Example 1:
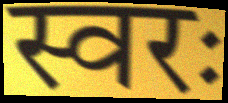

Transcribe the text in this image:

स्वरः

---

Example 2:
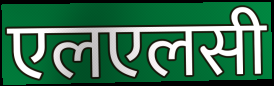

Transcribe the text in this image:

एलएलसी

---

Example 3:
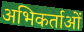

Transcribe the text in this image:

अभिकर्ताओं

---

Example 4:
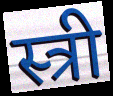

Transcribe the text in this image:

स्त्री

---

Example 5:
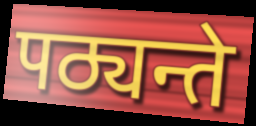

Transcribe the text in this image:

पठ्यन्ते